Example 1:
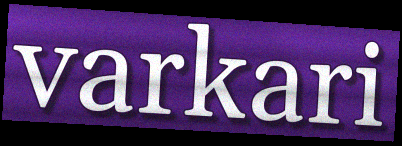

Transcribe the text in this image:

varkari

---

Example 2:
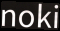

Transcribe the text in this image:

noki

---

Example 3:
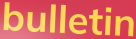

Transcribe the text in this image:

bulletin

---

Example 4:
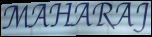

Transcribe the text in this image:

MAHARAJ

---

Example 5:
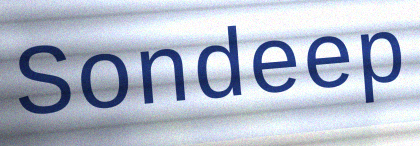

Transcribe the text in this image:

Sondeep